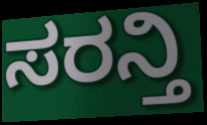
ಸರನ್ತಿ